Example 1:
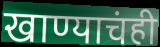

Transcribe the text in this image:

खाण्याचंही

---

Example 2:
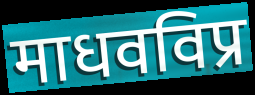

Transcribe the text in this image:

माधवविप्र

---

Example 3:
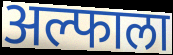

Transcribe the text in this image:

अल्फाला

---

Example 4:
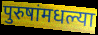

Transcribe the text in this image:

पुरुषांमधल्या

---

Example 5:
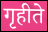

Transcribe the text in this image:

गृहीते